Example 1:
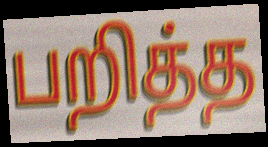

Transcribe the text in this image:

பறித்த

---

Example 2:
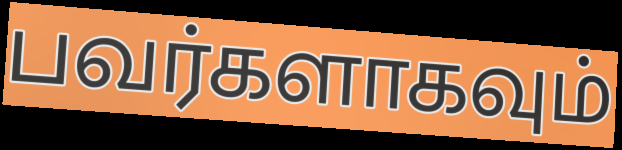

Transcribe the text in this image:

பவர்களாகவும்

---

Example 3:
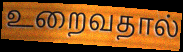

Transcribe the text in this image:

உறைவதால்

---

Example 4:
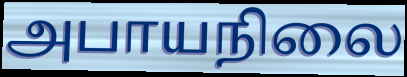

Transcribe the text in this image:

அபாயநிலை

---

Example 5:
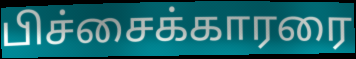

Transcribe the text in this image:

பிச்சைக்காரரை